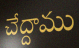
చేద్దాము